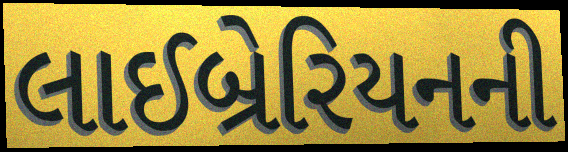
લાઈબ્રેરિયનની